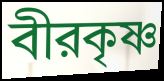
বীরকৃষ্ণ